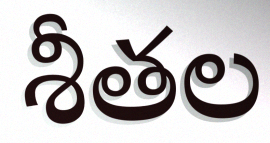
శీతల